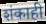
शंकाही